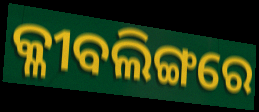
କ୍ଳୀବଲିଙ୍ଗରେ